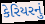
કેરિયરનું